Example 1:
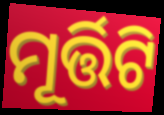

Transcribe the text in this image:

ମୂର୍ତ୍ତିଟି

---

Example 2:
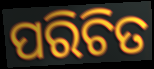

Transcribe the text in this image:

ପରିଚିତ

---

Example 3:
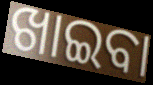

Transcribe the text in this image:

ଖାଇବା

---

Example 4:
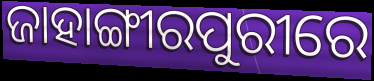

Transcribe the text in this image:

ଜାହାଙ୍ଗୀରପୁରୀରେ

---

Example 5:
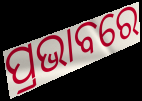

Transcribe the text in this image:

ପ୍ରଭାବରେ